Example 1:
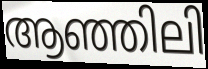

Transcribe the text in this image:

ആഞ്ഞിലി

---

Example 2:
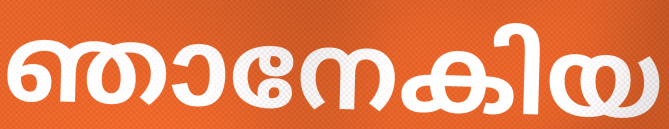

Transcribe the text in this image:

ഞാനേകിയ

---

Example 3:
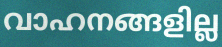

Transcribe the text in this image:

വാഹനങ്ങളില്ല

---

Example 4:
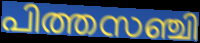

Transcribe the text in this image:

പിത്തസഞ്ചി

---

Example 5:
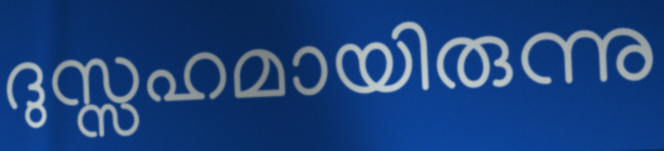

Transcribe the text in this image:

ദുസ്സഹമായിരുന്നു